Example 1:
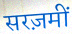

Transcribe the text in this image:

सरज़मीं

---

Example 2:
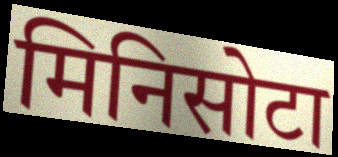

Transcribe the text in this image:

मिनिसोटा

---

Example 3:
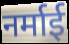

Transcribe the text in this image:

नर्माई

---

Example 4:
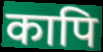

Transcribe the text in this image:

कापि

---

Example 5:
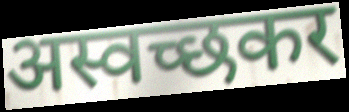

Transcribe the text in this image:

अस्वच्छकर